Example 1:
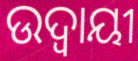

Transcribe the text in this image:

ଉଦ୍ବାୟୀ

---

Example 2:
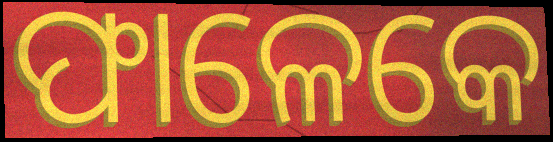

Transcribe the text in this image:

ଫାଳେକେ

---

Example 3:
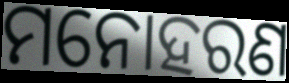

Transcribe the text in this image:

ମନୋହରଣ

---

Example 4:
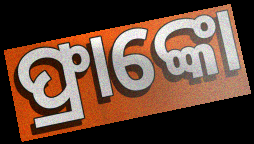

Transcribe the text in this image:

ଫ୍ରାଙ୍କୋ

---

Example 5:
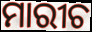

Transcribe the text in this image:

ମାରୀଚ